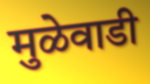
मुळेवाडी